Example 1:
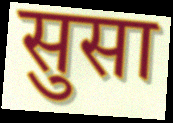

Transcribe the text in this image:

सुसा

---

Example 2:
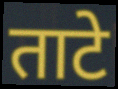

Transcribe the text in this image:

ताटे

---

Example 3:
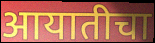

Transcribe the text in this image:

आयातीचा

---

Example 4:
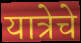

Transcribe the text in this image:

यात्रेचे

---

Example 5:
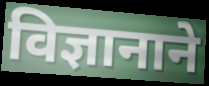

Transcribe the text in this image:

विज्ञानाने